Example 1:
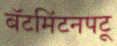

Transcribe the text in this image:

बॅटमिंटनपटू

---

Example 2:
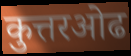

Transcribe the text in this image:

कुत्तरओढ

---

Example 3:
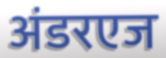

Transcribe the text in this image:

अंडरएज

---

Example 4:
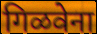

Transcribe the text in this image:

गिळवेना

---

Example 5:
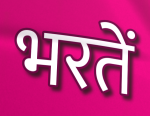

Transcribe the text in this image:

भरतें